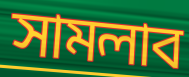
সামলাব